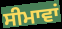
ਸੀਮਾਵਾਂ